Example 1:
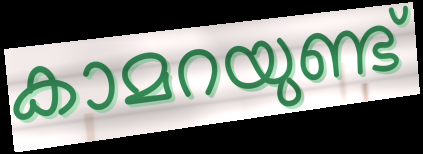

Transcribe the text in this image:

കാമറയുണ്ട്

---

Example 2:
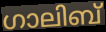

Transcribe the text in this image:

ഗാലിബ്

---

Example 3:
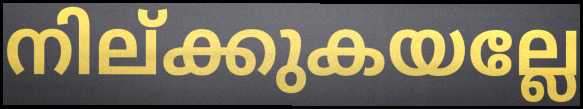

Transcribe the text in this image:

നില്ക്കുകയല്ലേ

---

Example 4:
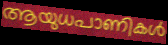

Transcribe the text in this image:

ആയുധപാണികൾ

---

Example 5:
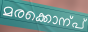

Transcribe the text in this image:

മരക്കൊന്പ്